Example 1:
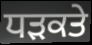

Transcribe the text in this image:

ਧੜਕਤੇ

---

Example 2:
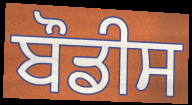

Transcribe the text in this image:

ਬੌਡੀਸ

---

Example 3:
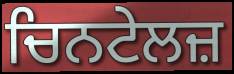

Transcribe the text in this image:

ਚਿਨਟੇਲਜ਼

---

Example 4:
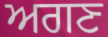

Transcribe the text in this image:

ਅਗਣ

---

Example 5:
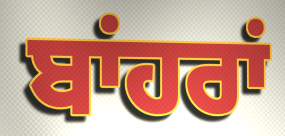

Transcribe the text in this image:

ਬਾਂਹਰਾਂ